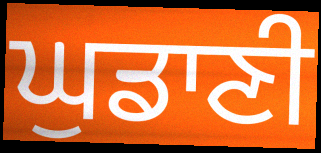
ਘੁਡਾਣੀ